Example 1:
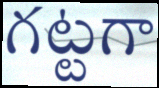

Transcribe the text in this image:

గట్టగా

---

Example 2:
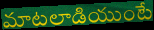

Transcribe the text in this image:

మాటలాడియుంటే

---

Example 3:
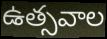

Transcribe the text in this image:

ఉత్సవాల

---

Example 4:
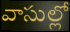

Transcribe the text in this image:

వాసుల్లో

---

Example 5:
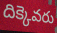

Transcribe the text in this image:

దిక్కెవరు